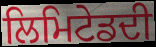
ਲਿਮਿਟੇਡਦੀ